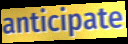
anticipate